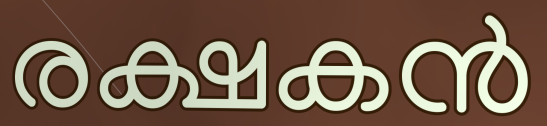
രക്ഷകൻ